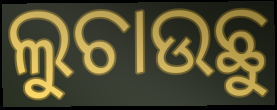
ଲୁଚାଉଛୁ